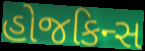
હોજકિન્સ